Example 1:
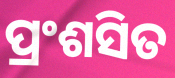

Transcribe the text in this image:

ପ୍ରଂଶସିତ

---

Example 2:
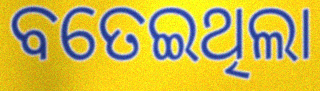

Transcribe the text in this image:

ବତେଇଥିଲା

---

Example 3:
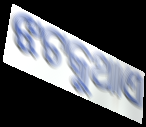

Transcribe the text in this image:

ଝଟକୁଥାଏ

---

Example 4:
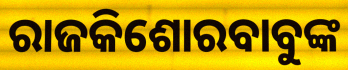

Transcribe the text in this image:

ରାଜକିଶୋରବାବୁଙ୍କ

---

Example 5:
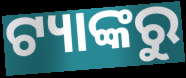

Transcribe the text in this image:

ଟ୍ୟାଙ୍କରୁ